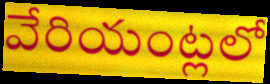
వేరియంట్లలో